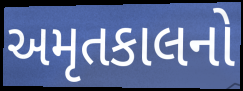
અમૃતકાલનો